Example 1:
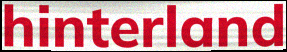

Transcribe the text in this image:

hinterland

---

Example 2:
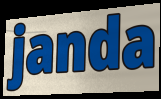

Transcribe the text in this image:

janda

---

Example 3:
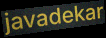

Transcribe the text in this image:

javadekar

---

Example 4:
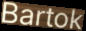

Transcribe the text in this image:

Bartok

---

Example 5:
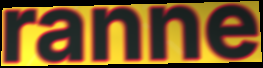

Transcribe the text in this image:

ranne